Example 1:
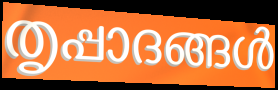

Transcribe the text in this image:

തൃപ്പാദങ്ങൾ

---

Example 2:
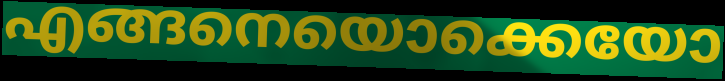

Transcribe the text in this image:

എങ്ങനെയൊക്കെയോ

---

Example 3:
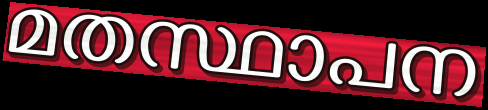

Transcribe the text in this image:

മതസ്ഥാപന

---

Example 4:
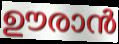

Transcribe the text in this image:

ഊരാൻ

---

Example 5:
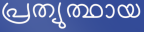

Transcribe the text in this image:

പ്രത്യുത്ഥായ